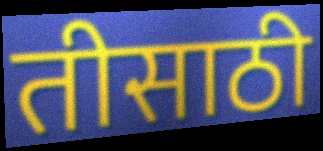
तीसाठी